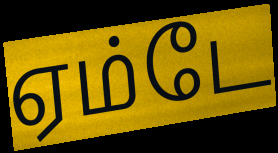
ஏம்டே